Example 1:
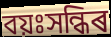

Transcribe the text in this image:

বয়ঃসন্ধিৰ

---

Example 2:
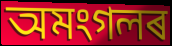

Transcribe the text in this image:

অমংগলৰ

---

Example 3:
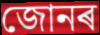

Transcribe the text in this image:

জোনৰ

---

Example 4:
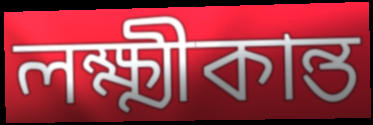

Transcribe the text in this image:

লক্ষ্মীকান্ত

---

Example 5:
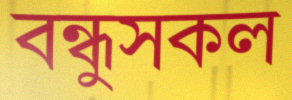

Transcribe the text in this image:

বন্ধুসকল